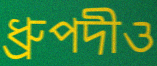
ধ্রুপদীও